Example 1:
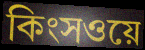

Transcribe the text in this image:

কিংসওয়ে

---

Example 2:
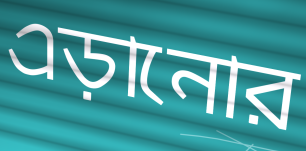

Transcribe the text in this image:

এড়ানোর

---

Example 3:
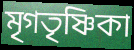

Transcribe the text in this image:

মৃগতৃষ্ণিকা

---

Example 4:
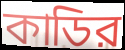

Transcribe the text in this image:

কাডির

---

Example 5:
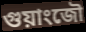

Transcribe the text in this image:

গুয়াংজৌ